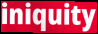
iniquity